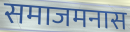
समाजमनास